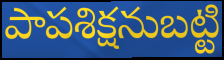
పాపశిక్షనుబట్టి